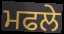
ਮਫਲੇ